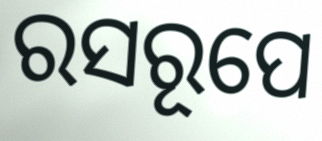
ରସରୂପେ